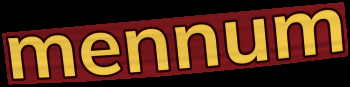
mennum